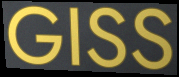
GISS